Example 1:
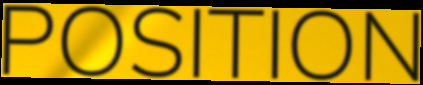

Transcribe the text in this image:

POSITION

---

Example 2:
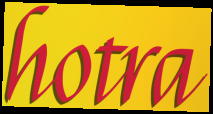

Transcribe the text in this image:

hotra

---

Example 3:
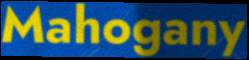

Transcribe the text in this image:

Mahogany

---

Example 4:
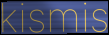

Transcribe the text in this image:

kismis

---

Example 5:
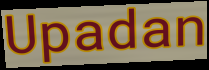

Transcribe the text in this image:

Upadan